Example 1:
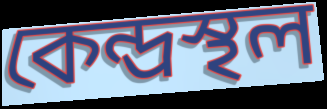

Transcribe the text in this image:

কেন্দ্ৰস্থল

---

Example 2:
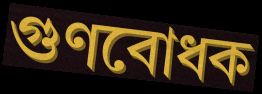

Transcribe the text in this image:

গুণবোধক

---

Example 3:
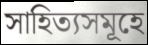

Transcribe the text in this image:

সাহিত্যসমূহে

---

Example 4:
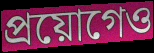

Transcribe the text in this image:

প্ৰয়োগেও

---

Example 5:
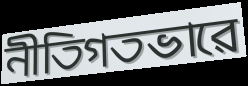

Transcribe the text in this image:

নীতিগতভাৱে